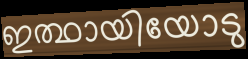
ഇത്ഥായിയോടു